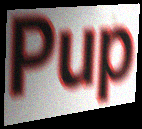
Pup